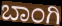
ಬಾಂಗಿ